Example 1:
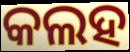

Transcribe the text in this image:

କଲହ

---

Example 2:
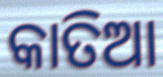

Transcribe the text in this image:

କାତିଆ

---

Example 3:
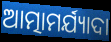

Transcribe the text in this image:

ଆତ୍ମାମର୍ଯ୍ୟାଦା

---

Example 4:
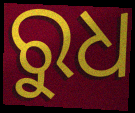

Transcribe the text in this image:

ରୁଧ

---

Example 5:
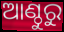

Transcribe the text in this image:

ଆଣ୍ଠୁରୁ